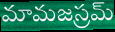
మామజస్రమ్